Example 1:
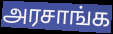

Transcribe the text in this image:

அரசாங்க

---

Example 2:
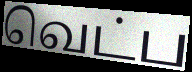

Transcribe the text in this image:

வெட்ப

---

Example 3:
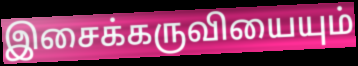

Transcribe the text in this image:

இசைக்கருவியையும்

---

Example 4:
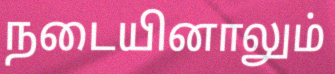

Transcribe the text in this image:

நடையினாலும்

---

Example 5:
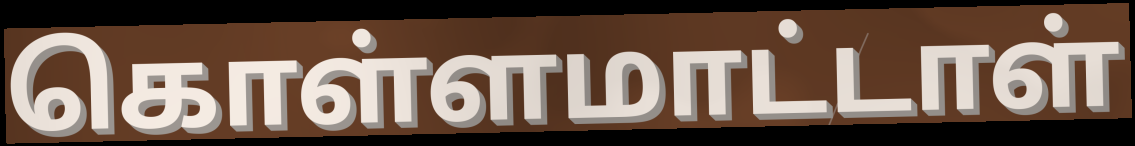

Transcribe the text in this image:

கொள்ளமாட்டாள்